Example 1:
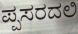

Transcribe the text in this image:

ಪ್ಪಸರದಲಿ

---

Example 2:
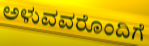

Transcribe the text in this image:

ಅಳುವವರೊಂದಿಗೆ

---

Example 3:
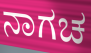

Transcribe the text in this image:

ನಾಗಚ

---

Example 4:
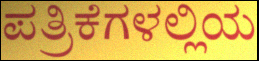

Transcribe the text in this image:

ಪತ್ರಿಕೆಗಳಲ್ಲಿಯ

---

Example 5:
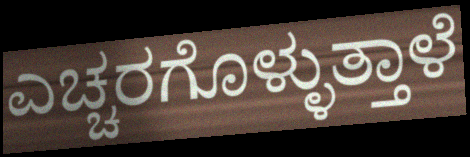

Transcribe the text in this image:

ಎಚ್ಚರಗೊಳ್ಳುತ್ತಾಳೆ